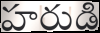
హరుడి